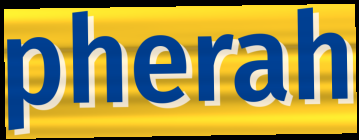
pherah